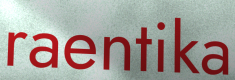
raentika